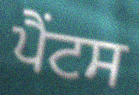
ਪੈਂਟਸ